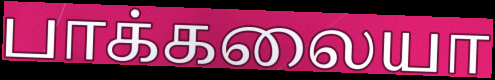
பாக்கலையா